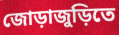
জোড়াজুড়িতে